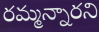
రమ్మన్నారని